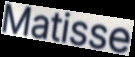
Matisse